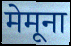
मेमूना